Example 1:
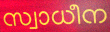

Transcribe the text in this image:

സ്വാധീന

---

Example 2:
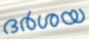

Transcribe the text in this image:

ദർശയ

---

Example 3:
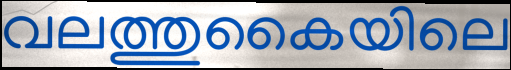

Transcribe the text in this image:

വലത്തുകൈയിലെ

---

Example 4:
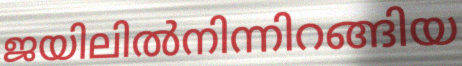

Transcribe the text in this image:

ജയിലിൽനിന്നിറങ്ങിയ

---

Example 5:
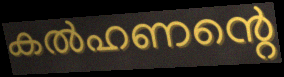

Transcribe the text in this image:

കൽഹണന്റെ